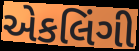
એકલિંગી